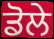
ਡੋਲੇ